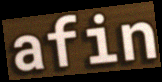
afin